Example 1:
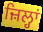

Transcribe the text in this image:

ਜ਼ਿਲ੍ਹਾਂ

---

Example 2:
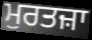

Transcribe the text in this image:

ਮੁਰਤਜ਼ਾ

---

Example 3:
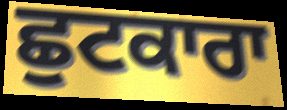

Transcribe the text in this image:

ਛੁਟਕਾਰਾ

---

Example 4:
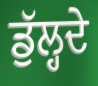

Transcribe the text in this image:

ਡੁੱਲ੍ਹਦੇ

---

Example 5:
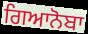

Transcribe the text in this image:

ਗਿਆਨੋਬਾ